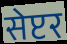
सेप्टर